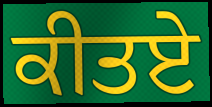
ਕੀਤਏ